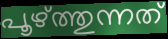
പൂഴ്ത്തുന്നത്